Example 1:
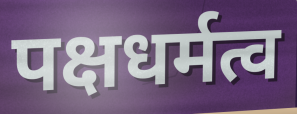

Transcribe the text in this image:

पक्षधर्मत्व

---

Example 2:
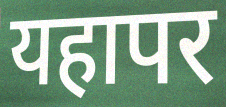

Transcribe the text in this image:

यहापर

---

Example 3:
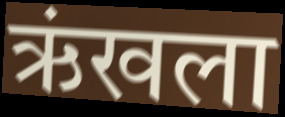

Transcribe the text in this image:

ऋंखला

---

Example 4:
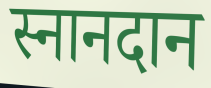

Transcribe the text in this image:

स्नानदान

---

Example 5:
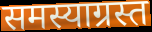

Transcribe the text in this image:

समस्याग्रस्त